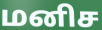
மனிச